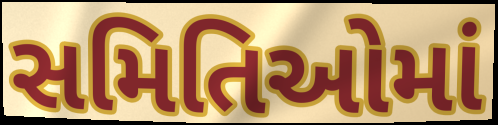
સમિતિઓમાં